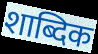
शाब्दिक